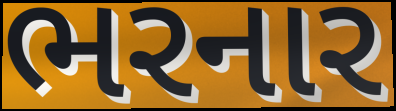
ભરનાર